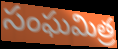
సంఘమిత్ర